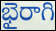
భైరాగి